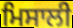
ਮਿਸਾਲੀ